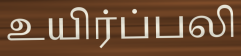
உயிர்ப்பலி